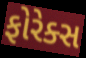
ફોરેક્સ